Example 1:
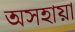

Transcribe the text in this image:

অসহায়া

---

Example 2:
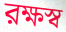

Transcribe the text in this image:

রক্ষস্ব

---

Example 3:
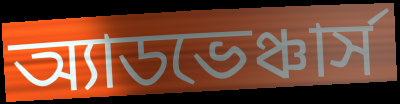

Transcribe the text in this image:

অ্যাডভেঞ্চার্স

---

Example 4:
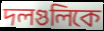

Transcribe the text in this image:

দলগুলিকে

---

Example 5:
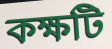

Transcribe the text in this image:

কক্ষটি